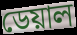
ডেয়াল